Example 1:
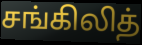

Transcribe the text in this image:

சங்கிலித்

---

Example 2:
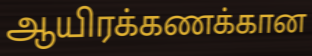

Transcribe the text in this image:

ஆயிரக்கணக்கான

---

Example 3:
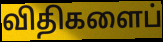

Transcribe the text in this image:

விதிகளைப்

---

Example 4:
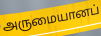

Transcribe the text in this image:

அருமையானப்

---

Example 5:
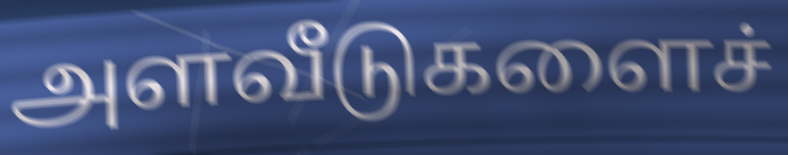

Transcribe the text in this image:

அளவீடுகளைச்